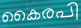
കൈരപി